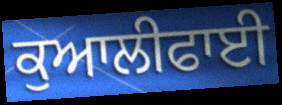
ਕੁਆਲੀਫਾਈ